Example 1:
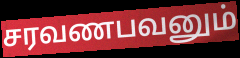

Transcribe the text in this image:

சரவணபவனும்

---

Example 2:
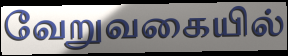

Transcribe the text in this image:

வேறுவகையில்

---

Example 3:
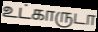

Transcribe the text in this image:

உட்காருடா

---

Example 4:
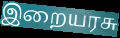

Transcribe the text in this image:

இறையரசு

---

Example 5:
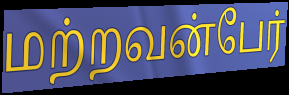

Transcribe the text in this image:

மற்றவன்பேர்